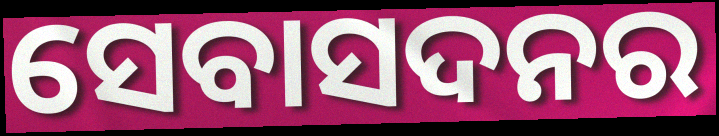
ସେବାସଦନର